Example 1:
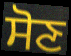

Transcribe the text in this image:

ਸੋਣ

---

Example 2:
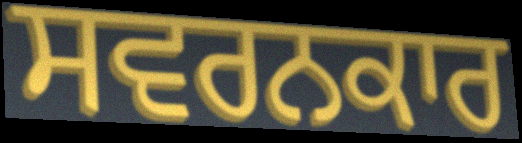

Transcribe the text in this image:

ਸਵਰਨਕਾਰ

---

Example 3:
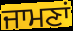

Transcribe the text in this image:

ਜਾਮਣਾਂ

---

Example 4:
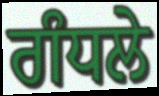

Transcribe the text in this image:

ਗੰਧਲੇ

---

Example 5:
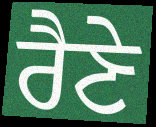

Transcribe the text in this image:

ਰੈਣੇ